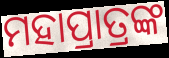
ମହାପ୍ରାତ୍ରଙ୍କ